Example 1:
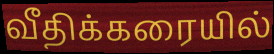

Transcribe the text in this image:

வீதிக்கரையில்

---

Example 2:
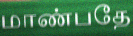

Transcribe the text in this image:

மாண்பதே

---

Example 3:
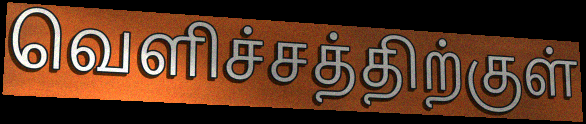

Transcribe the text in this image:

வெளிச்சத்திற்குள்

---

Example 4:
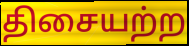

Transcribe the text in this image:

திசையற்ற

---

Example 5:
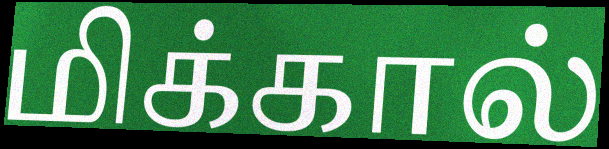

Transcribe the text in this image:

மிக்கால்